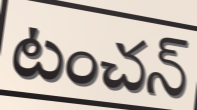
టంచన్